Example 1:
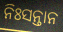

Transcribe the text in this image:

ନିଃସନ୍ତାନ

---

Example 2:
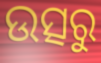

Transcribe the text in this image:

ଉତ୍ସରୁ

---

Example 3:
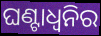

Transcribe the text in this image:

ଘଣ୍ଟାଧ୍ୱନିର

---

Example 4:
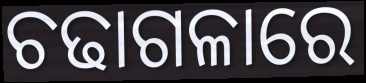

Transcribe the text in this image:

ଚଢାଗଳାରେ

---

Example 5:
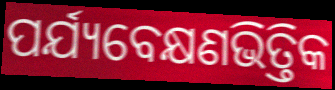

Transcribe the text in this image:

ପର୍ଯ୍ୟବେକ୍ଷଣଭିତ୍ତିକ